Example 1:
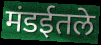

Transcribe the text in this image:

मंडईतले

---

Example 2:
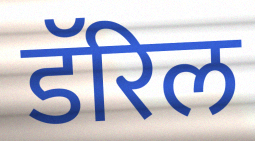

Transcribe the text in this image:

डॅरिल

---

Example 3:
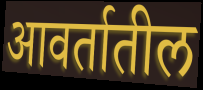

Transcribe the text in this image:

आवर्तातील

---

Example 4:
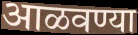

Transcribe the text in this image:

आळवण्या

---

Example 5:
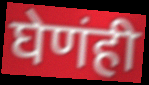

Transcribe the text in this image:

घेणंही